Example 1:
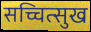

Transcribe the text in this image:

सच्चित्सुख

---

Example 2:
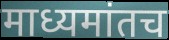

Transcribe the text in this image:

माध्यमांतच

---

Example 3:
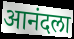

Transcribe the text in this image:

आनंदला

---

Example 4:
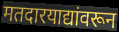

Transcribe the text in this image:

मतदारयाद्यांवरून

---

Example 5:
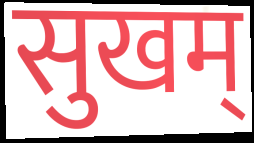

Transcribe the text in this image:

सुखम्